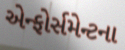
એન્ફોર્સમેન્ટના